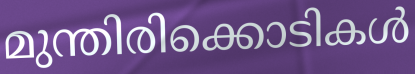
മുന്തിരിക്കൊടികൾ